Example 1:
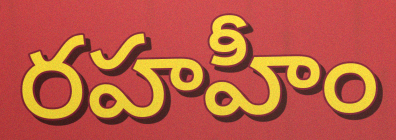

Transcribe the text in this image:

రహహీం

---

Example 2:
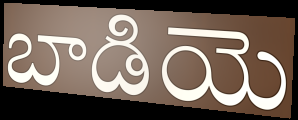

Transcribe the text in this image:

బాడియె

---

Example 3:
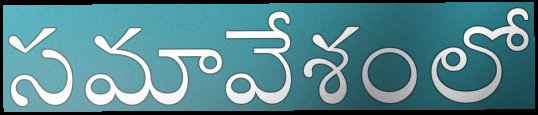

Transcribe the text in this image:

సమావేశంలో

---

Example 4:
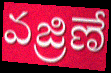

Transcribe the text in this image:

వజ్రిణే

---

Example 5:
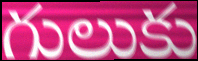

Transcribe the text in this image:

గులుకు